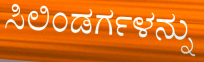
ಸಿಲಿಂಡರ್ಗಳನ್ನು